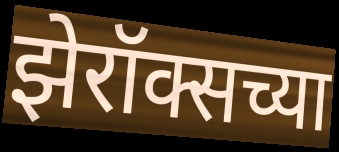
झेरॉक्सच्या